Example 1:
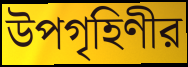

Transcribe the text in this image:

উপগৃহিণীর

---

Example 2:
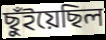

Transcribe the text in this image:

ছুঁইয়েছিল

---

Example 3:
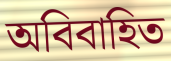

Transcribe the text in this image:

অবিবাহিত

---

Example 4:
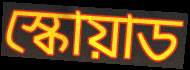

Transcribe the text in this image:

স্কোয়াড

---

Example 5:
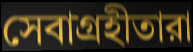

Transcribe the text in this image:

সেবাগ্রহীতারা